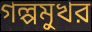
গল্পমুখর